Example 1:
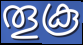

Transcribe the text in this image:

തൂകൂ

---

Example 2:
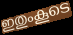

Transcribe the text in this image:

ഇതുംകൂടെ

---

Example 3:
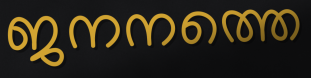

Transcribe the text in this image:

ജനനത്തെ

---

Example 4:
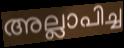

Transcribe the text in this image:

അല്ലാപിച്ച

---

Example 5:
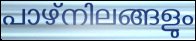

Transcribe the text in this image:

പാഴ്നിലങ്ങളും